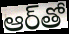
ఆర్‌తో